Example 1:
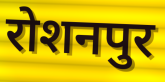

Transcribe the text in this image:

रोशनपुर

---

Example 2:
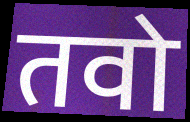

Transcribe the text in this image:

तवो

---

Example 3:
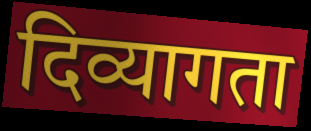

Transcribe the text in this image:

दिव्यागता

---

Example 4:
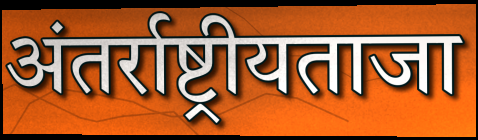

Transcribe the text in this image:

अंतर्राष्ट्रीयताजा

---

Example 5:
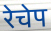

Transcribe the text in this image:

रेचेप